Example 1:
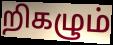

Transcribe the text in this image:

றிகழும்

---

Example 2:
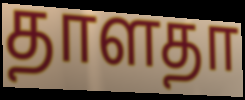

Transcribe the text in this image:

தாளதா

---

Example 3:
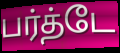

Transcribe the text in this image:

பர்த்டே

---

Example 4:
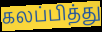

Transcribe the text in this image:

கலப்பித்து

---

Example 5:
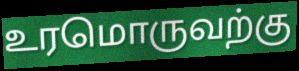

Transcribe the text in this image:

உரமொருவற்கு